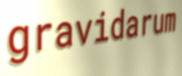
gravidarum